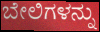
ಬೇಲಿಗಳನ್ನು